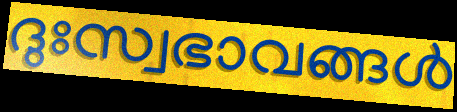
ദുഃസ്വഭാവങ്ങൾ